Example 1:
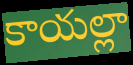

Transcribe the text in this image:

కాయల్లా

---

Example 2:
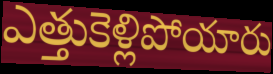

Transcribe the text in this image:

ఎత్తుకెళ్లిపోయారు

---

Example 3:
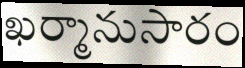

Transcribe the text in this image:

ఖర్మానుసారం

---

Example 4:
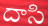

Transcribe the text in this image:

దాసి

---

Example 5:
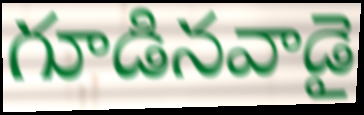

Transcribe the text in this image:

గూడినవాడై